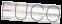
EUCO